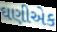
ઘણીએક